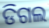
ଡିଗଲ